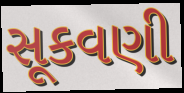
સૂકવણી